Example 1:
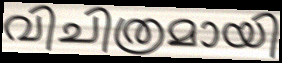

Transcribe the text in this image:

വിചിത്രമായി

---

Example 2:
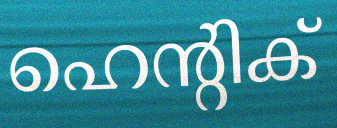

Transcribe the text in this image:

ഹെന്റിക്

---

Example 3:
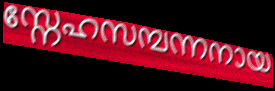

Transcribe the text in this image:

സ്നേഹസമ്പന്നനായ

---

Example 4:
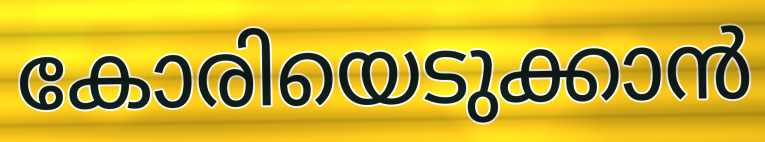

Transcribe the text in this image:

കോരിയെടുക്കാൻ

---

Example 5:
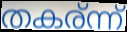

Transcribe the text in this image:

തകര്ന്ന്